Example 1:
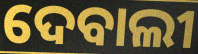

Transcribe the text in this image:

ଦେବାଲୀ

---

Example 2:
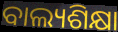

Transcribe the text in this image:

ବାଲ୍ୟଶିକ୍ଷା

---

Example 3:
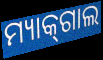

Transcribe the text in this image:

ମ୍ୟାକ୍‌ଗାଲ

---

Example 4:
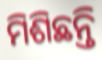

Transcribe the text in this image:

ମିଶିଛନ୍ତି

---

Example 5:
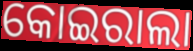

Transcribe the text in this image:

କୋଇରାଲା